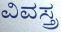
ವಿವಸ್ತ್ರ